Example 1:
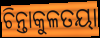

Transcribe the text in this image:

ଚିନ୍ତାକୁଳତୟା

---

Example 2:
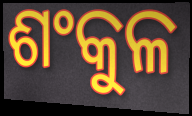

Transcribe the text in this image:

ଶଂକୁଳ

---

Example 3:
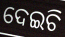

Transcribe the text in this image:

ଦେଇଚି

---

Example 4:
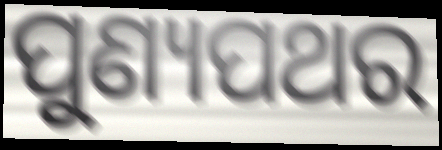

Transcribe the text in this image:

ପୁଣ୍ୟପଥର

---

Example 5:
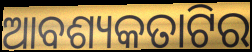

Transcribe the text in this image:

ଆବଶ୍ୟକତାଟିର